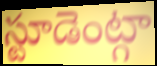
స్టూడెంట్గా